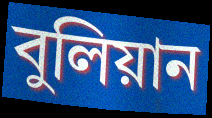
বুলিয়ান